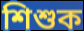
শিশুক